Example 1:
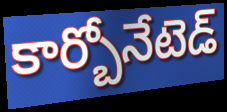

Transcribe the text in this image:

కార్బోనేటెడ్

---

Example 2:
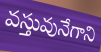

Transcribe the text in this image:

వస్తువునేగాని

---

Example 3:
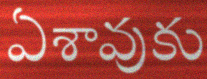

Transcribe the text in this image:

ఏశావుకు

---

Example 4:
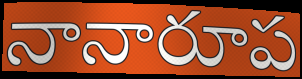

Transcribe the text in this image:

నానారూప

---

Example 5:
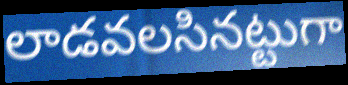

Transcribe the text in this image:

లాడవలసినట్టుగా